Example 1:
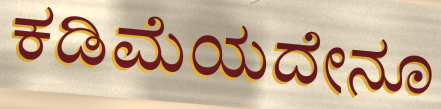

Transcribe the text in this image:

ಕಡಿಮೆಯದೇನೂ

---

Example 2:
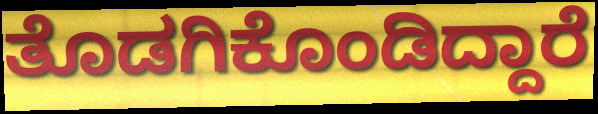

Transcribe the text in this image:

ತೊಡಗಿಕೊಂಡಿದ್ದಾರೆ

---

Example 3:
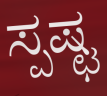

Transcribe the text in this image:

ಸ್ಪಷ್ಟ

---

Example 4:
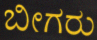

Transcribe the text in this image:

ಬೀಗರು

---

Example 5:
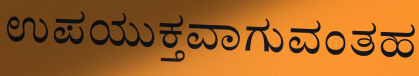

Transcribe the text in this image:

ಉಪಯುಕ್ತವಾಗುವಂತಹ